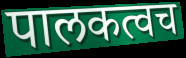
पालकत्वच